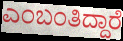
ಎಂಬಂತಿದ್ದಾರೆ